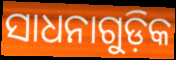
ସାଧନାଗୁଡ଼ିକ